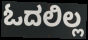
ಓದಲಿಲ್ಲ